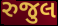
રુજુલ